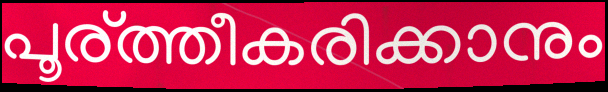
പൂര്ത്തീകരിക്കാനും